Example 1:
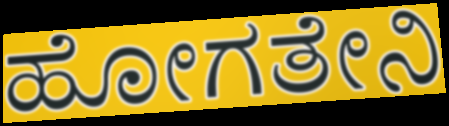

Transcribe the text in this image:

ಹೋಗತೇನಿ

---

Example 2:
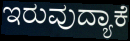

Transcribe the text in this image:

ಇರುವುದ್ಯಾಕೆ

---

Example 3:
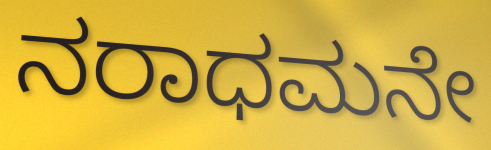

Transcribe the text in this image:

ನರಾಧಮನೇ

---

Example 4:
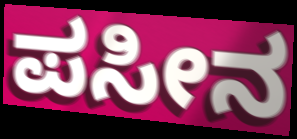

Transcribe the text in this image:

ಪಸೀನ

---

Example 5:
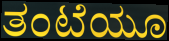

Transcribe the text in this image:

ತಂಟೆಯೂ